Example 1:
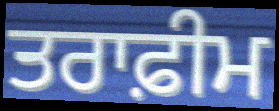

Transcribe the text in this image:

ਤਰਾਫ਼ੀਮ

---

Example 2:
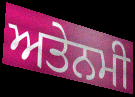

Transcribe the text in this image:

ਅਤੇਨਮੀ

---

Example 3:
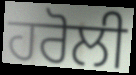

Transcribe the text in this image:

ਹਰੋਲੀ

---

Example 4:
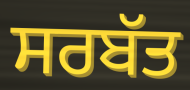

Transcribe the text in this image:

ਸਰਬੱਤ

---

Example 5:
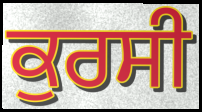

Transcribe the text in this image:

ਕੁਰਸੀ